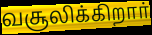
வசூலிக்கிறார்